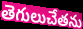
తెగులుచేతను